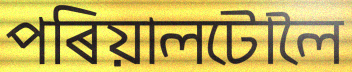
পৰিয়ালটোলৈ